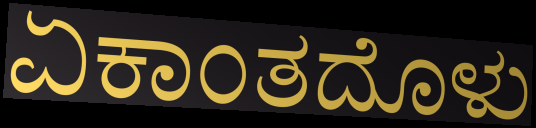
ಏಕಾಂತದೊಳು